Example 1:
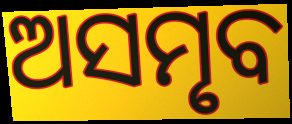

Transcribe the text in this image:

ଅସମୃବ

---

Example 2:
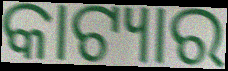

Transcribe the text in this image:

କାଟ୍ୟାର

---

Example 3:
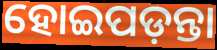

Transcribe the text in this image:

ହୋଇପଡ଼ନ୍ତା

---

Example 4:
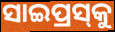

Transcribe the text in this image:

ସାଇପ୍ରସ୍‌କୁ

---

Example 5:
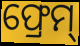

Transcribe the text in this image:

ଫ୍ରେମ୍